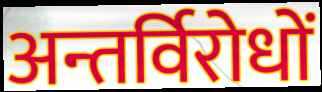
अन्तर्विरोधों